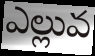
ఎల్లువ